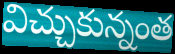
విచ్చుకున్నంత